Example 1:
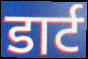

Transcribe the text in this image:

डार्ट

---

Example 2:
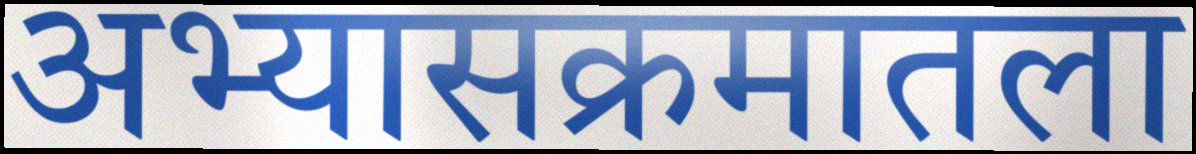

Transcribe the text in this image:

अभ्यासक्रमातला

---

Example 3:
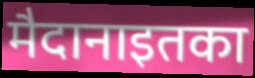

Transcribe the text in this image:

मैदानाइतका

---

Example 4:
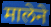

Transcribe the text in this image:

मालेने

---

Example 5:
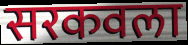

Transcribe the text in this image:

सरकवला